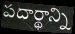
పదార్థాన్ని